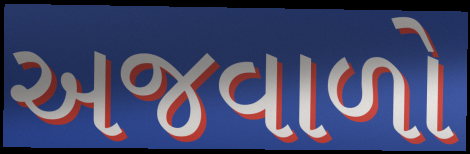
અજવાળો